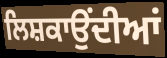
ਲਿਸ਼ਕਾਉਂਦੀਆਂ